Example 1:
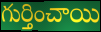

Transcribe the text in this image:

గుర్తించాయి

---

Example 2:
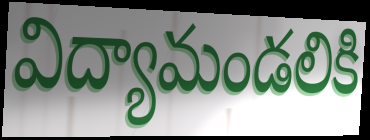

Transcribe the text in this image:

విద్యామండలికి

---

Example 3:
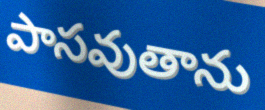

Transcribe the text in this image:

పాసవుతాను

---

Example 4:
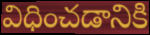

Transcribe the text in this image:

విధించడానికి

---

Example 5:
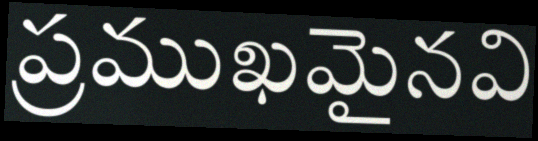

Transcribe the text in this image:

ప్రముఖమైనవి